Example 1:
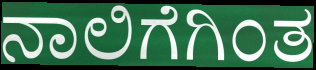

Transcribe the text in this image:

ನಾಲಿಗೆಗಿಂತ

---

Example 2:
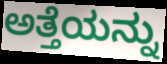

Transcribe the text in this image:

ಅತ್ತೆಯನ್ನು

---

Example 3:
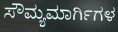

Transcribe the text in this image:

ಸೌಮ್ಯಮಾರ್ಗಿಗಳ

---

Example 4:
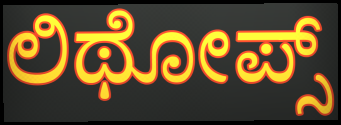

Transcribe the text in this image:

ಲಿಥೋಪ್ಸ್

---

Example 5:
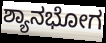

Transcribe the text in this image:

ಶ್ಯಾನಭೋಗ